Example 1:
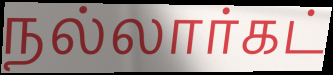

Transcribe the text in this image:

நல்லார்கட்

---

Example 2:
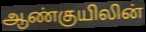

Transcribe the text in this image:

ஆண்குயிலின்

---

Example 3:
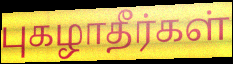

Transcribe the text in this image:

புகழாதீர்கள்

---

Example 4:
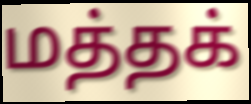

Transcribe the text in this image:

மத்தக்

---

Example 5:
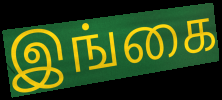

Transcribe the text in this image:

இங்கை